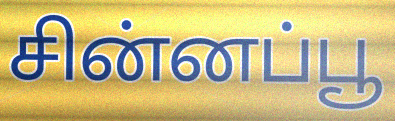
சின்னப்பூ